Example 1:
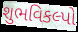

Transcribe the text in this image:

શુભવિકલ્પો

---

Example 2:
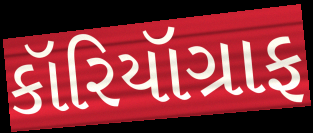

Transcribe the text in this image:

કૉરિયૉગ્રાફ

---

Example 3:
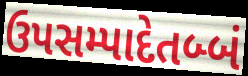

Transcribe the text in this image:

ઉપસમ્પાદેતબ્બં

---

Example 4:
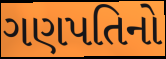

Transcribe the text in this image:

ગણપતિનો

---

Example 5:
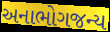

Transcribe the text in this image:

અનાભોગજન્ય